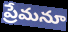
ప్రేమనూ